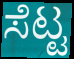
ಸೆಟ್ಟ